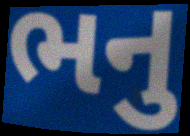
ભનુ